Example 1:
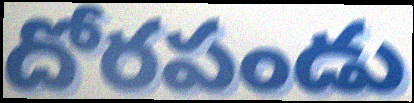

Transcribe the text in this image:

దోరపండు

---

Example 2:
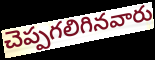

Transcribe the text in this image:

చెప్పగలిగినవారు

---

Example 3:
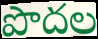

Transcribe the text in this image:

పొదల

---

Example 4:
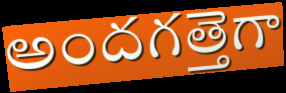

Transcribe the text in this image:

అందగత్తెగా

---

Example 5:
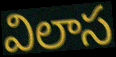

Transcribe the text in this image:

విలాస